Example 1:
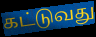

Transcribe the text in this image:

கட்டுவது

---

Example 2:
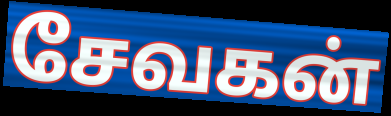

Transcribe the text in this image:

சேவகன்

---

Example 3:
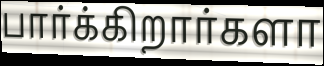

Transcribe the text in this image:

பார்க்கிறார்களா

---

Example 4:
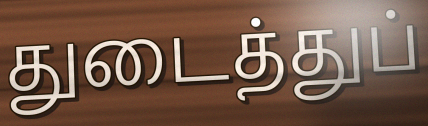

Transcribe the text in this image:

துடைத்துப்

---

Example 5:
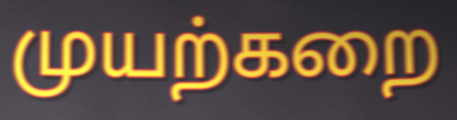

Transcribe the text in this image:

முயற்கறை